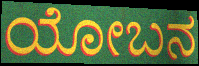
ಯೋಬನ